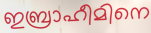
ഇബ്രാഹീമിനെ